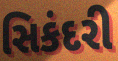
સિકંદરી